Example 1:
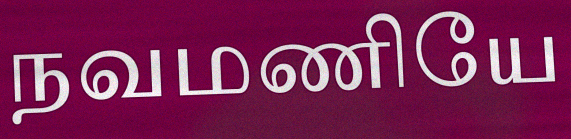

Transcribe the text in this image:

நவமணியே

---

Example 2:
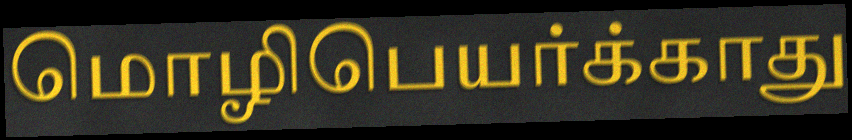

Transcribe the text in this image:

மொழிபெயர்க்காது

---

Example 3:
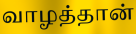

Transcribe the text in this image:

வாழத்தான்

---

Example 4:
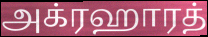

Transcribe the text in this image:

அக்ரஹாரத்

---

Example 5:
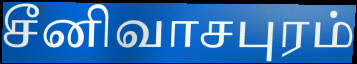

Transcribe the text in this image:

சீனிவாசபுரம்